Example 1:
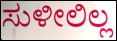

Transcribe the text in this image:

ಸುಳೀಲಿಲ್ಲ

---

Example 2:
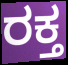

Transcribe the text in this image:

ರಕ್ತ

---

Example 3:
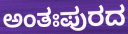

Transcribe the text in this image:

ಅಂತಃಪುರದ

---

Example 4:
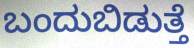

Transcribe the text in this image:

ಬಂದುಬಿಡುತ್ತೆ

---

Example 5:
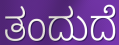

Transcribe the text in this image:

ತಂದುದೆ